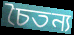
চৈতন্য